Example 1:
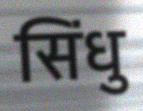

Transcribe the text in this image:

सिंधु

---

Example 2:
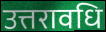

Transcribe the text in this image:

उत्तरावधि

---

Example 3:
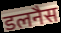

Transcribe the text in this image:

डलनैस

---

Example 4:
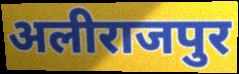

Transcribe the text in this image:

अलीराजपुर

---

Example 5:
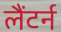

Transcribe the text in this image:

लैंटर्न